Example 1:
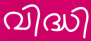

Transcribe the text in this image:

വിദ്ധി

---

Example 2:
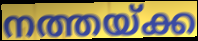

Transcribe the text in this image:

നത്തയ്ക്ക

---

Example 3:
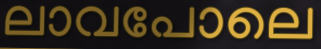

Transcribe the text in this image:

ലാവപോലെ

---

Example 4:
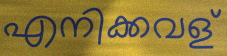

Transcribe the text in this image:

എനിക്കവള്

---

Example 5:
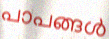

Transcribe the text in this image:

പാപങ്ങൾ